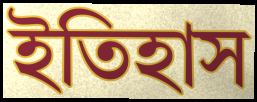
ইতিহাস